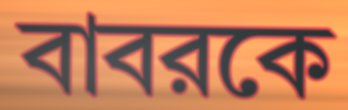
বাবরকে